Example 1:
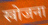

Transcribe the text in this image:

खोजना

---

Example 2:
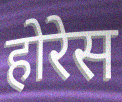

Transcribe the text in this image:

होरेस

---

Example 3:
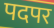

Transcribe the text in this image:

पदपर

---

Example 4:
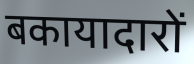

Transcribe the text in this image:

बकायादारों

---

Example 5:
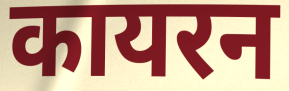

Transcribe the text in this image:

कायरन